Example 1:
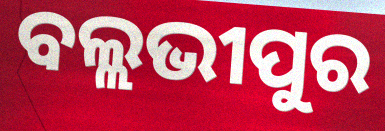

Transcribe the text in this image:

ବଲ୍ଲଭୀପୁର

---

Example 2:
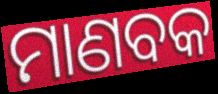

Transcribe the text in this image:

ମାଣବକ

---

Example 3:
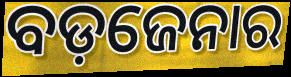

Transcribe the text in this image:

ବଡ଼ଜେନାର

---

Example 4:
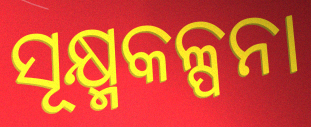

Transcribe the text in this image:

ସୂକ୍ଷ୍ମକଳ୍ପନା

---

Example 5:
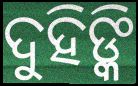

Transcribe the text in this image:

ଦୁହିଙ୍କି